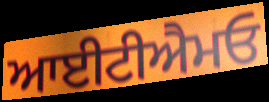
ਆਈਟੀਐਮਓ